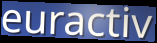
euractiv